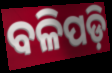
ବଳିପଡ଼ି